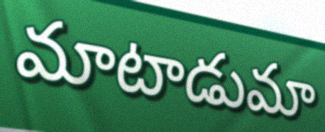
మాటాడుమా